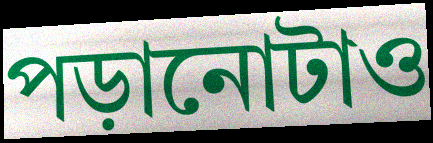
পড়ানোটাও